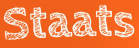
Staats